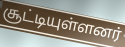
சூட்டியுள்ளனர்